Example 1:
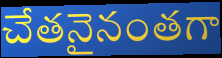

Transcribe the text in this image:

చేతనైనంతగా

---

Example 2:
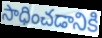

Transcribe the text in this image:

సాధించడానికి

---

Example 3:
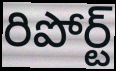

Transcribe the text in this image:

రిపోర్ట్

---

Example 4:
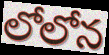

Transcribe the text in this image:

లోలోన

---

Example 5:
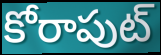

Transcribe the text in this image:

కోరాపుట్